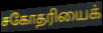
சகோதரியைக்